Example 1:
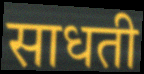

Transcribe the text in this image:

साधती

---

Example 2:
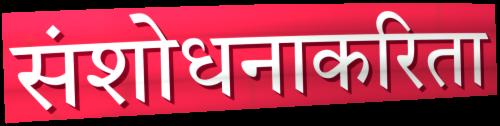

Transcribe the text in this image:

संशोधनाकरिता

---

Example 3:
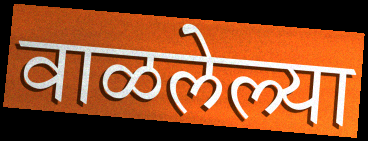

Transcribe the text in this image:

वाळलेल्या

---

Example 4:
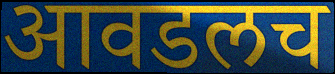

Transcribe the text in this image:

आवडलच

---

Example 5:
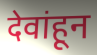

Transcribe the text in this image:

देवांहून